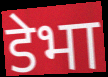
डेभा